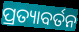
ପ୍ରତ୍ୟାବର୍ତନ